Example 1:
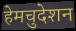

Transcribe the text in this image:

हेमचुदेशन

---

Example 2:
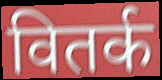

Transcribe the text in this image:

वितर्क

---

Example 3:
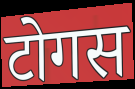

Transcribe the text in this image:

टोगस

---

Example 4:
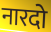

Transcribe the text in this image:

नारदो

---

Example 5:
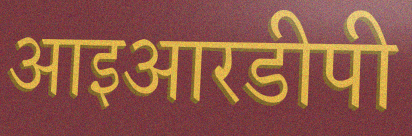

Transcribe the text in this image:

आइआरडीपी